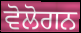
ਵੋਲੋਗਨ